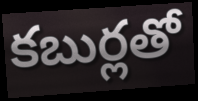
కబుర్లతో